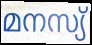
മനസ്യ്